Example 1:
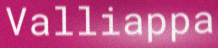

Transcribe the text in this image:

Valliappa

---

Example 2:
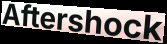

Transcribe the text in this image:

Aftershock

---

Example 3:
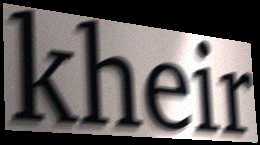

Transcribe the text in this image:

kheir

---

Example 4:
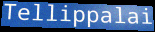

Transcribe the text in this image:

Tellippalai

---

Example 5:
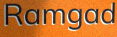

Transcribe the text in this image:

Ramgad